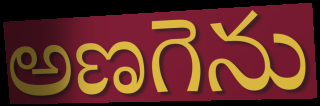
అణగెను